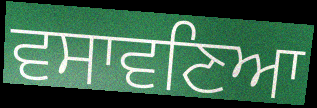
ਵਸਾਵਣਿਆ